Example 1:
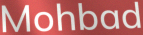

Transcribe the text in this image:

Mohbad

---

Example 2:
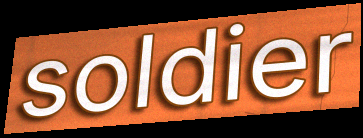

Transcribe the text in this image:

soldier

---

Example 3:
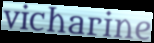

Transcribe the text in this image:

vicharine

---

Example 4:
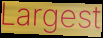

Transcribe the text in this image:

Largest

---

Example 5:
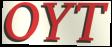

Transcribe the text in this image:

OYT